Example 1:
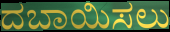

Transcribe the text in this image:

ದಬಾಯಿಸಲು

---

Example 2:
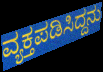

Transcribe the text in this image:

ವ್ಯಕ್ತಪಡಿಸಿದ್ದನು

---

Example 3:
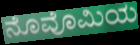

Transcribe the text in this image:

ನೊವೊಮಿಯ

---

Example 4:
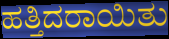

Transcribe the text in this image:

ಹತ್ತಿದರಾಯಿತು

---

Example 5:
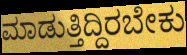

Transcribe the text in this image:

ಮಾಡುತ್ತಿದ್ದಿರಬೇಕು